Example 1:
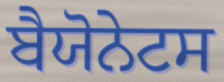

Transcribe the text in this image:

ਬੈਯੋਨੇਟਸ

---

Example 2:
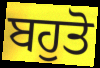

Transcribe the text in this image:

ਬਹੁਤੋ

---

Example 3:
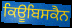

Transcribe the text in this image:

ਕਿਊਬਿਸਕੈਨ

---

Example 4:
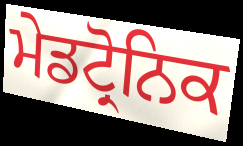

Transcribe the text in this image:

ਮੇਡਟ੍ਰੋਨਿਕ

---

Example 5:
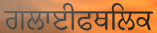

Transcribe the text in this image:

ਗਲਾਈਫਥਲਿਕ